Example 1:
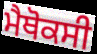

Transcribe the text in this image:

ਮੈਥੋਕਸੀ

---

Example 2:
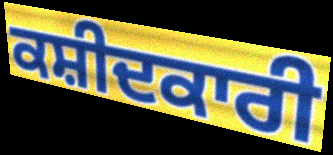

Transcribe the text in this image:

ਕਸ਼ੀਦਕਾਰੀ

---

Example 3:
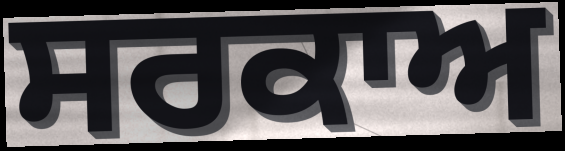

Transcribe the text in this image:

ਸਰਕਾਅ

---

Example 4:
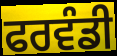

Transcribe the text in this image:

ਫਰਵੰਡੀ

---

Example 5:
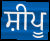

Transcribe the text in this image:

ਸ਼ੀਪੂ